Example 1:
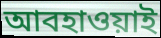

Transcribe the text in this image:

আবহাওয়াই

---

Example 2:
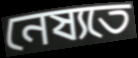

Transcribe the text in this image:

নেষ্যতে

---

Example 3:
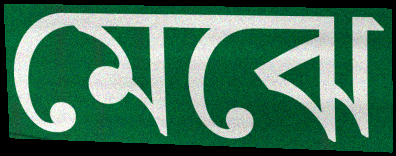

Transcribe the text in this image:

মেঝে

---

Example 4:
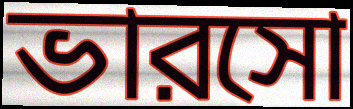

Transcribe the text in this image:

ভারসো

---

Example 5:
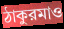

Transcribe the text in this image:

ঠাকুরমাও